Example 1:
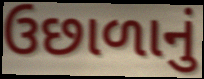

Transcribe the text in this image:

ઉછાળાનું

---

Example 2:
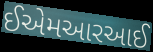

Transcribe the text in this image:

ઈએમઆરઆઈ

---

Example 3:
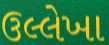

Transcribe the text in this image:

ઉલ્લેખા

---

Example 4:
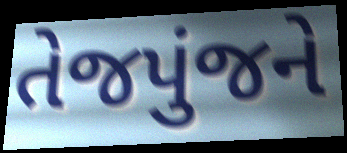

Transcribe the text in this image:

તેજપુંજને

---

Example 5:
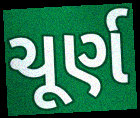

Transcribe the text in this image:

ચૂર્ણ